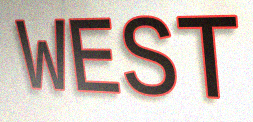
WEST